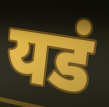
यडं